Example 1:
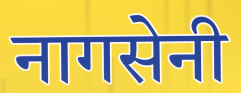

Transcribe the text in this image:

नागसेनी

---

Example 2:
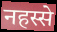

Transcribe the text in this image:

नहस्से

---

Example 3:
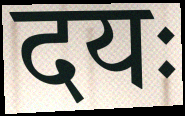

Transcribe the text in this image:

दयः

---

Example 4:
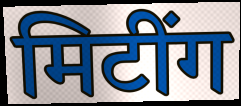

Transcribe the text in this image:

मिटींग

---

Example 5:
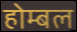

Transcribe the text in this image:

होम्बल